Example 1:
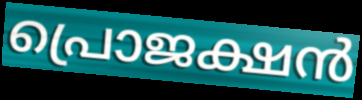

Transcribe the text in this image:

പ്രൊജക്ഷൻ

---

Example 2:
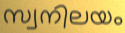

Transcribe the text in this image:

സ്വനിലയം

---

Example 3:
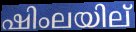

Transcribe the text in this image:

ഷിംലയില്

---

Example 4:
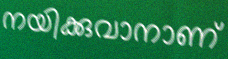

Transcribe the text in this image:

നയിക്കുവാനാണ്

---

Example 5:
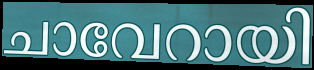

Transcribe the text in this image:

ചാവേറായി